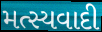
મત્સ્યવાદી